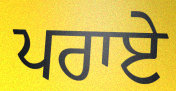
ਪਰਾਏ